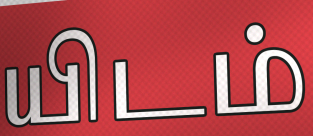
யிடம்